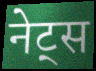
नेट्स